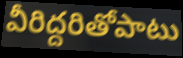
వీరిద్దరితోపాటు